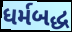
ધર્મબદ્ધ